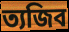
ত্যজিব